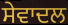
ਸੇਵਾਦਲ